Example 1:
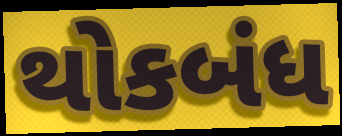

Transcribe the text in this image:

થોકબંધ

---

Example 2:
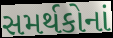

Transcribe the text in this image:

સમર્થકોનાં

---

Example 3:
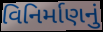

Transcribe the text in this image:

વિનિર્માણનું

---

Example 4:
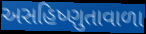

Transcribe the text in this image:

અસહિષ્ણુતાવાળા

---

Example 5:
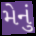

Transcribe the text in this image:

મેનું